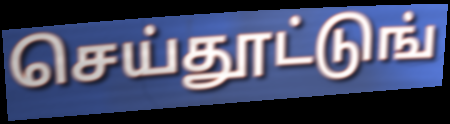
செய்தூட்டுங்